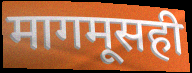
मागमूसही